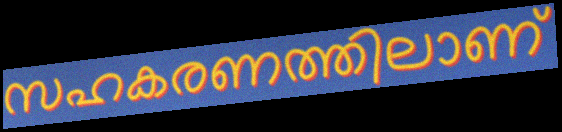
സഹകരണത്തിലാണ്